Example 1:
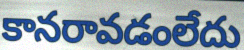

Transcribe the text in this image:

కానరావడంలేదు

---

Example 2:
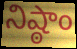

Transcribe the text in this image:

నిష్ఠాం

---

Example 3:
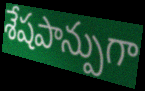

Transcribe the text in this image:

శేషపాన్పుగా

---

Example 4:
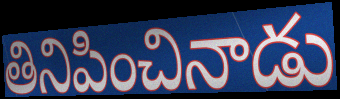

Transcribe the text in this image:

తినిపించినాడు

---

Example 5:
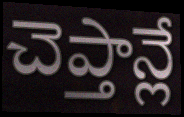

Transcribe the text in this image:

చెప్తాన్లే